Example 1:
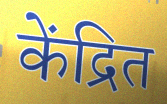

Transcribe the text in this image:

केंद्रित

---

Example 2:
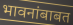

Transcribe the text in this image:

भावनांबाबत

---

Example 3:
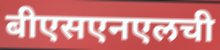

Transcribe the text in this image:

बीएसएनएलची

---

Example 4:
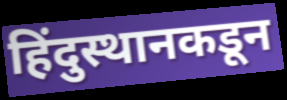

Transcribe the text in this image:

हिंदुस्थानकडून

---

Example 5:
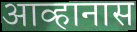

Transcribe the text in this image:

आव्हानास